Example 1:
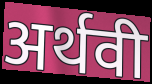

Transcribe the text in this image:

अर्थवी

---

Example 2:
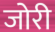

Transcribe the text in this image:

जोरी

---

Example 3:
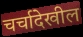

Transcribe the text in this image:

चर्चादेखील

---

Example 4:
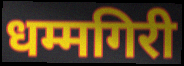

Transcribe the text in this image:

धम्मगिरी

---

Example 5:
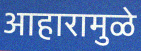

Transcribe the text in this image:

आहारामुळे